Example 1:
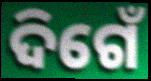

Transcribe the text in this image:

ଦିଗେଁ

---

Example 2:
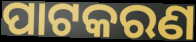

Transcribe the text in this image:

ପାଟକରଣ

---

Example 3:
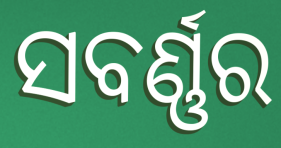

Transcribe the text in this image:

ସବର୍ଣ୍ଣର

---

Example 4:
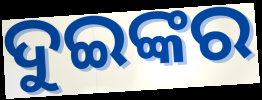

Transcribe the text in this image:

ଦୁଇଙ୍କର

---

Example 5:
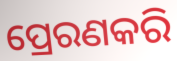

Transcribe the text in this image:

ପ୍ରେରଣକରି